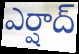
ఎర్షాద్